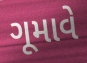
ગૂમાવે